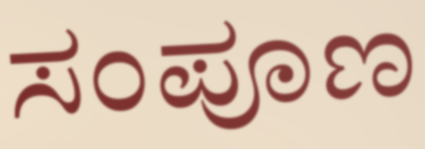
ಸಂಪೂಣ